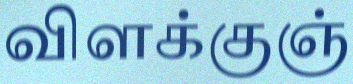
விளக்குஞ்